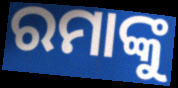
ରମାଙ୍କୁ